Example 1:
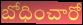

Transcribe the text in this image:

బోధించారో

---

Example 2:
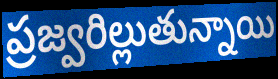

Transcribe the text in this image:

ప్రజ్వరిల్లుతున్నాయి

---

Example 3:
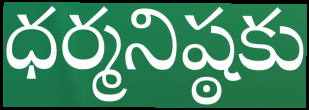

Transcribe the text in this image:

ధర్మనిష్ఠకు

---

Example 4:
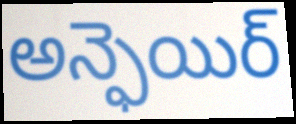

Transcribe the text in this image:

అన్ఫెయిర్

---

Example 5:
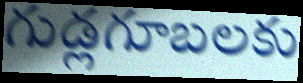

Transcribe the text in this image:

గుడ్లగూబలకు